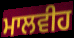
ਮਾਲਵੀਹ